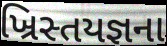
ખ્રિસ્તયજ્ઞના